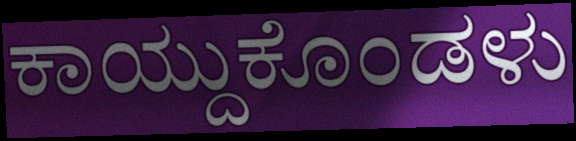
ಕಾಯ್ದುಕೊಂಡಳು